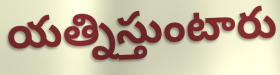
యత్నిస్తుంటారు